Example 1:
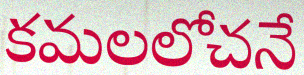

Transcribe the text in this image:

కమలలోచనే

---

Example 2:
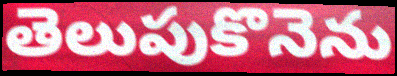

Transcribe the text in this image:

తెలుపుకొనెను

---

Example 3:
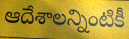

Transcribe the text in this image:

ఆదేశాలన్నింటికీ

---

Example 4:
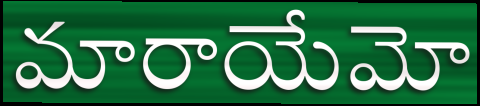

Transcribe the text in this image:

మారాయేమో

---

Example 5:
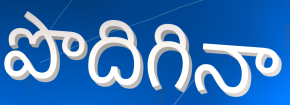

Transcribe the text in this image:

పొదిగినా